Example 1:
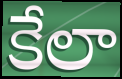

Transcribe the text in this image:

కేలా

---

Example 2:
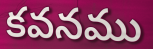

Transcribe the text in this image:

కవనము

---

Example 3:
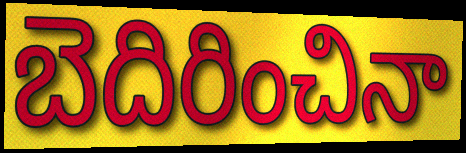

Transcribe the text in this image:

బెదిరించినా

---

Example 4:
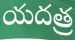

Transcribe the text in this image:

యదత్ర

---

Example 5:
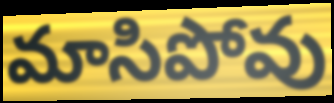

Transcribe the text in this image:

మాసిపోవు